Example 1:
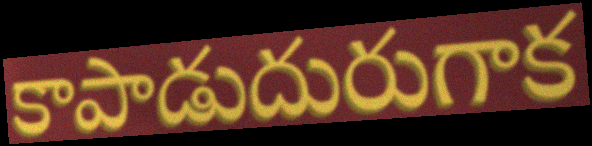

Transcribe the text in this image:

కాపాడుదురుగాక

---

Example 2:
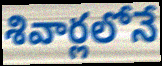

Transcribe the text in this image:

శివార్లలోనే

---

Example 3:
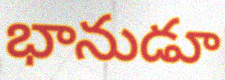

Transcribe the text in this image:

భానుడూ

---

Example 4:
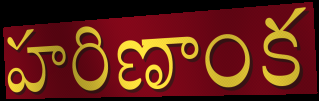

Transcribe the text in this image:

హరిణాంక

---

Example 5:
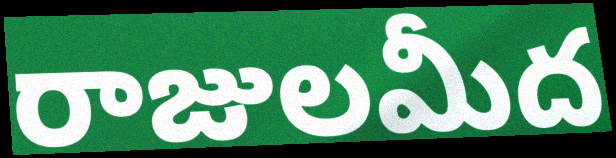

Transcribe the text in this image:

రాజులమీద